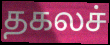
தகலச்